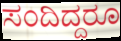
ಸಂದಿದ್ದರೂ